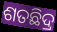
ଶତଛିଦ୍ର